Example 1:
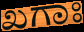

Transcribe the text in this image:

ಖಗಾಃ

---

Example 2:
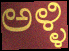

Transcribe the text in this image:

ಅಳ್ಳಿ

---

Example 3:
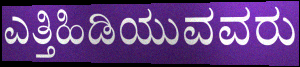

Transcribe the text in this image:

ಎತ್ತಿಹಿಡಿಯುವವರು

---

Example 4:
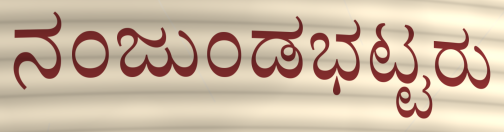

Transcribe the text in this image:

ನಂಜುಂಡಭಟ್ಟರು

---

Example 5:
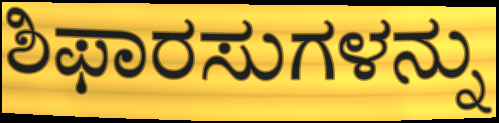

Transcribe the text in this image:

ಶಿಫಾರಸುಗಳನ್ನು